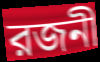
রজনী